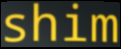
shim